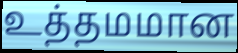
உத்தமமான